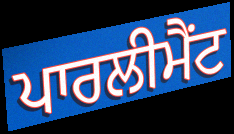
ਪਾਰਲੀਮੈਂਟ